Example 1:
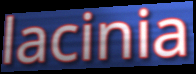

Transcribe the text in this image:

lacinia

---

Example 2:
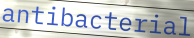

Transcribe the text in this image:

antibacterial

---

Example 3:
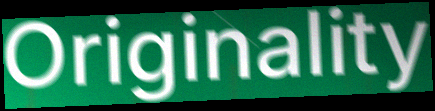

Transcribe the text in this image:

Originality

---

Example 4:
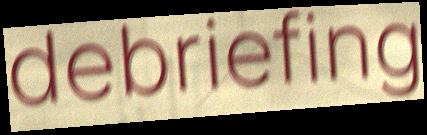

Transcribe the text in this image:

debriefing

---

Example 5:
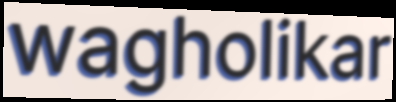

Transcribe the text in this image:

wagholikar